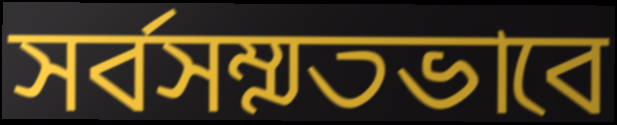
সর্বসম্মতভাবে